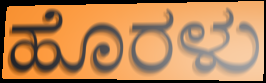
ಹೊರಳು